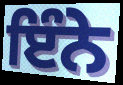
ਇੰਨੇ